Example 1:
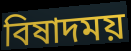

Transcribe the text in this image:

বিষাদময়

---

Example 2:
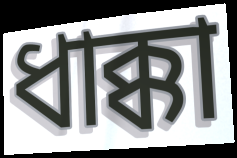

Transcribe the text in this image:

ধাক্কা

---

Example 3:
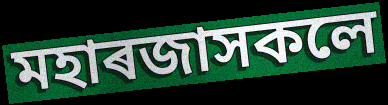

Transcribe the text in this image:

মহাৰজাসকলে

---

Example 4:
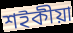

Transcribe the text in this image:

শইকীয়া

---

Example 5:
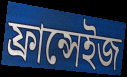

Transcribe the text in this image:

ফ্ৰান্সেইজ